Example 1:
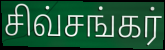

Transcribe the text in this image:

சிவ்சங்கர்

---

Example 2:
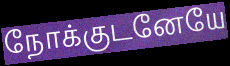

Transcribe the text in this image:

நோக்குடனேயே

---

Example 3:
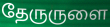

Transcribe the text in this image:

தேருருளை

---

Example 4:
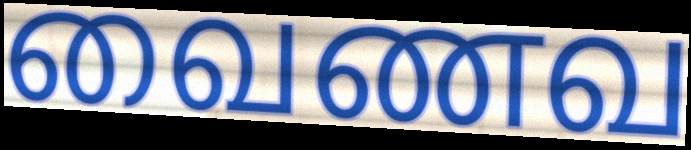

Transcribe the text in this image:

வைணவ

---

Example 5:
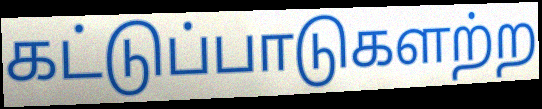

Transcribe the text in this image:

கட்டுப்பாடுகளற்ற